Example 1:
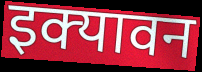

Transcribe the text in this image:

इक्‍यावन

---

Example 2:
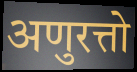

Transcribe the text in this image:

अणुरत्तो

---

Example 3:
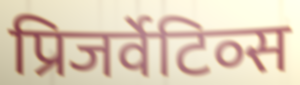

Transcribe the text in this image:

प्रिजर्वेटिव्स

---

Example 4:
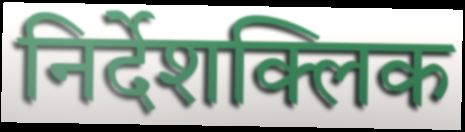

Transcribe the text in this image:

निर्देशक्लिक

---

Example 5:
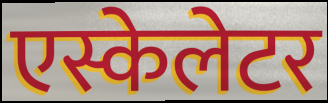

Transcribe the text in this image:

एस्केलेटर